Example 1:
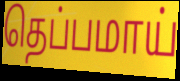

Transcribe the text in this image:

தெப்பமாய்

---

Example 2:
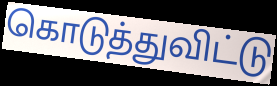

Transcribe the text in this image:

கொடுத்துவிட்டு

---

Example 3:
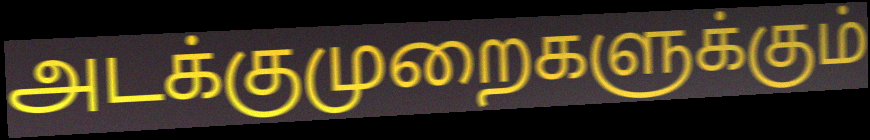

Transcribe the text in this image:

அடக்குமுறைகளுக்கும்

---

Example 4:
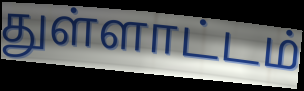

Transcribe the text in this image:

துள்ளாட்டம்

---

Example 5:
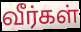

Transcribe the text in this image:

வீர்கள்